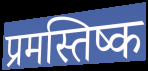
प्रमस्तिष्क